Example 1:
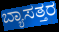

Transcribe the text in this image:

ಬ್ಯಾಸತ್ತರ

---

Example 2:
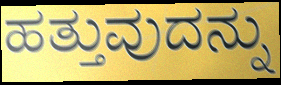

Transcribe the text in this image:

ಹತ್ತುವುದನ್ನು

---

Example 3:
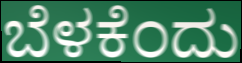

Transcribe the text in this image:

ಬೆಳಕೆಂದು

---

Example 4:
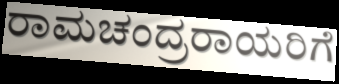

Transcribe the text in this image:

ರಾಮಚಂದ್ರರಾಯರಿಗೆ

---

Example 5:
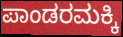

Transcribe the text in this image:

ಪಾಂಡರಮಕ್ಕಿ